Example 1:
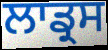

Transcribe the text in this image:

ਲਾਡ੍ਰਸ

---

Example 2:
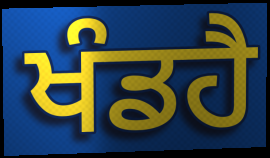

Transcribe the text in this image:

ਖੰਡਹੈ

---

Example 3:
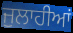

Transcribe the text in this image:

ਜੁਲਾਹੀਆਂ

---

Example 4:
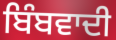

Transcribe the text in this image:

ਬਿੰਬਵਾਦੀ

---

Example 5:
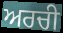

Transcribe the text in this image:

ਅਰਚੀ